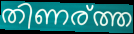
തിണര്ത്ത